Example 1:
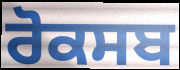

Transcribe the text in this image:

ਰੋਕਸਬ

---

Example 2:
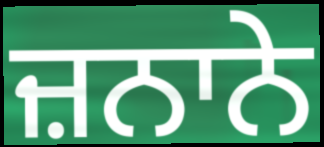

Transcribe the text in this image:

ਜ਼ਨਾਨੇ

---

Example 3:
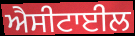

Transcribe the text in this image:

ਐਸੀਟਾਈਲ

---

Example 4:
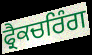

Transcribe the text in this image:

ਫ੍ਰੈਕਚਰਿੰਗ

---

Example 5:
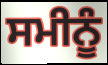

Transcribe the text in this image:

ਸਮੀਨੂੰ